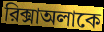
রিক্সাঅলাকে